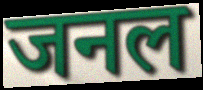
जनल